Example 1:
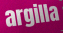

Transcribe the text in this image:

argilla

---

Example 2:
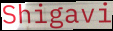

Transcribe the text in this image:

Shigavi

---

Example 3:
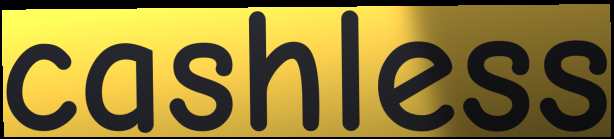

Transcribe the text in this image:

cashless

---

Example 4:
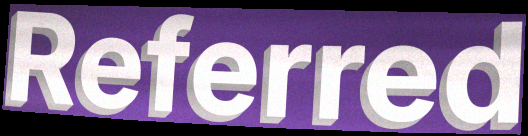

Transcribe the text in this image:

Referred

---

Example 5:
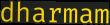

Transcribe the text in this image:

dharmam